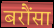
बरौंसा